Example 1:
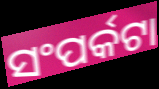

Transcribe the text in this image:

ସଂପର୍କଟା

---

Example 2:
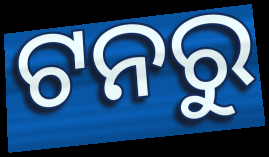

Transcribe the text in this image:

ଟନରୁ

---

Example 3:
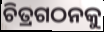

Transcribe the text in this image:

ଚିତ୍ରଗଠନକୁ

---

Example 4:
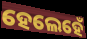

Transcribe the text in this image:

ହେଲେହେଁ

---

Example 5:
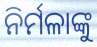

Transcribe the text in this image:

ନିର୍ମଳାଙ୍କୁ